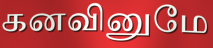
கனவினுமே